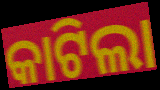
କାଟିଲା